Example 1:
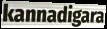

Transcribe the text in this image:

kannadigara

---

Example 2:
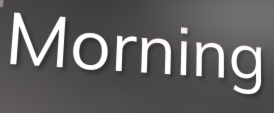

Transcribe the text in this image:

Morning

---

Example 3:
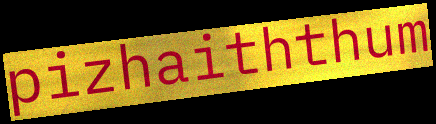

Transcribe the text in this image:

pizhaiththum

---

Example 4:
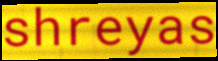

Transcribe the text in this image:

shreyas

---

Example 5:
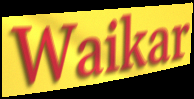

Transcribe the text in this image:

Waikar